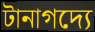
টানাগদ্যে